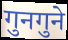
गुनगुने